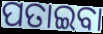
ପତାଇବା